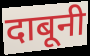
दाबूनी